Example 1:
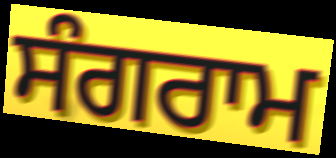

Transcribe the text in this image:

ਸੰਗਰਾਮ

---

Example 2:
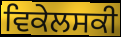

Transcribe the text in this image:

ਵਿਕੇਲਸਕੀ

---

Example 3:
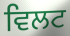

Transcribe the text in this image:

ਵਿਲਟ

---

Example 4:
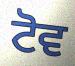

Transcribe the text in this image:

ਟੋਵ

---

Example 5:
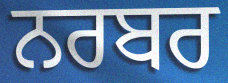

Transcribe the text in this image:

ਨਰਬਰ